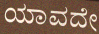
ಯಾವದೇ